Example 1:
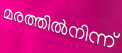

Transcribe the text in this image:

മരത്തിൽനിന്ന്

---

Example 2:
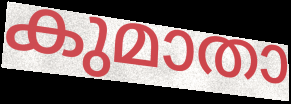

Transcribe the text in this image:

കുമാതാ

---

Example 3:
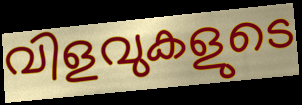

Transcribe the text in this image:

വിളവുകളുടെ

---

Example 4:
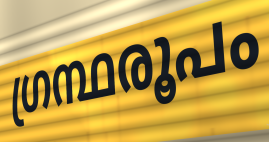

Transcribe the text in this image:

ഗ്രന്ഥരൂപം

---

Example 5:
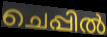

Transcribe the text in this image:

ചെപ്പിൽ